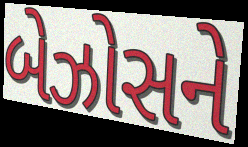
બેઝોસને